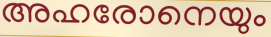
അഹരോനെയും